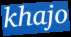
khajo